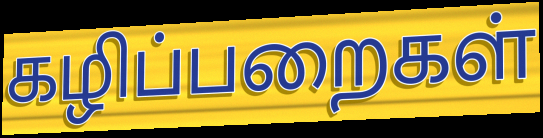
கழிப்பறைகள்